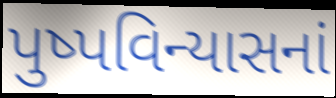
પુષ્પવિન્યાસનાં